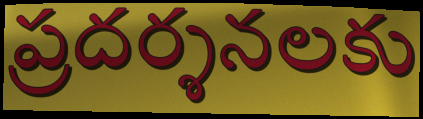
ప్రదర్శనలకు